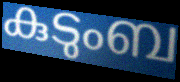
കുടുംബ